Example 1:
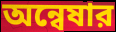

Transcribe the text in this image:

অন্বেষার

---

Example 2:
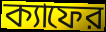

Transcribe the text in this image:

ক্যাফের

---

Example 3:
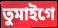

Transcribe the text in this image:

তুমাইগে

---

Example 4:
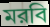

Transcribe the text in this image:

মরবি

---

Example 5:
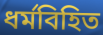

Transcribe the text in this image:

ধর্মবিহিত